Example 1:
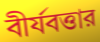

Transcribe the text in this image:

বীর্যবত্তার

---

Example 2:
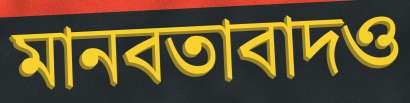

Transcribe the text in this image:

মানবতাবাদও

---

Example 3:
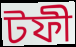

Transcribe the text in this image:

টফী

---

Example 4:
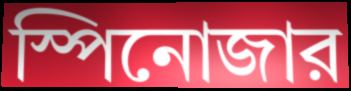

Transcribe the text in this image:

স্পিনোজার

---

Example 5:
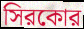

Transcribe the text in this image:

সিরকোর